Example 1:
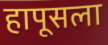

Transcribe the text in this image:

हापूसला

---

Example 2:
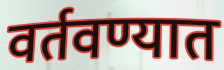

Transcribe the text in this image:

वर्तवण्यात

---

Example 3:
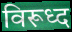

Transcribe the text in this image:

विरूध्द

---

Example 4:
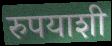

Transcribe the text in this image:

रुपयाशी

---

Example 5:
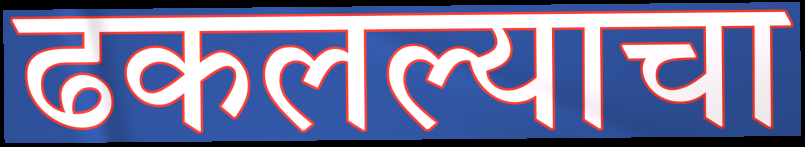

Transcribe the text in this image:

ढकलल्याचा